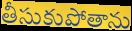
తీసుకుపోతాను